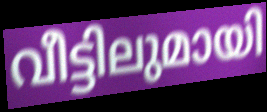
വീട്ടിലുമായി